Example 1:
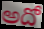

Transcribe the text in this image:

అదో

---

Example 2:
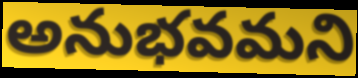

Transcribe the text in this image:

అనుభవమని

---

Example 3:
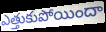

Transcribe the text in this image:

ఎత్తుకుపోయిందా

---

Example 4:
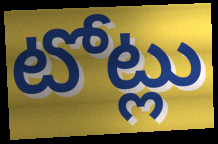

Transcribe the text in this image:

టోట్లు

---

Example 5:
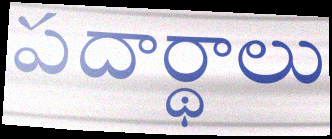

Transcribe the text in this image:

పదార్థాలు